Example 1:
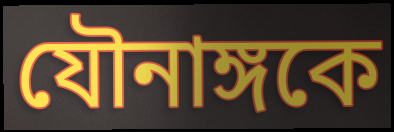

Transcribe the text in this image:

যৌনাঙ্গকে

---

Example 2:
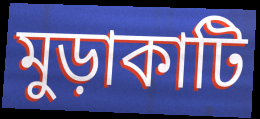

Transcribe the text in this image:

মুড়াকাটি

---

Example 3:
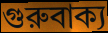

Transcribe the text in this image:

গুরুবাক্য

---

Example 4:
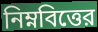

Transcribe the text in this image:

নিম্নবিত্তের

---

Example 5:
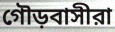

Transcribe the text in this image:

গৌড়বাসীরা